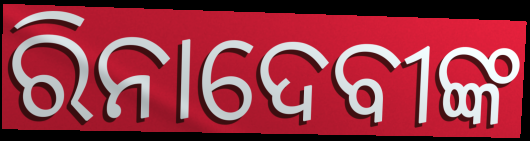
ରିନାଦେବୀଙ୍କ